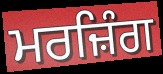
ਮਰਜ਼ਿੰਗ